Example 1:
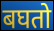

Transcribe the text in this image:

बघतो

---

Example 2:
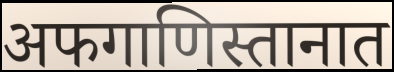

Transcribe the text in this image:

अफगाणिस्तानात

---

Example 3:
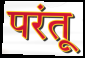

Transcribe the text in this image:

परंतू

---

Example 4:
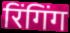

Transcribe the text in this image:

रिंगिंग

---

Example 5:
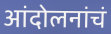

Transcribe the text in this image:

आंदोलनांचं